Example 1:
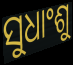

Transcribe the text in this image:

ସୁଧାଂଶୁ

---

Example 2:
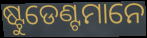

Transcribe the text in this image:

ଷ୍ଟୁଡେଣ୍ଟମାନେ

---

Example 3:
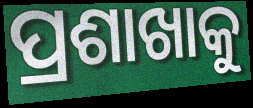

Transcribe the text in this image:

ପ୍ରଶାଖାକୁ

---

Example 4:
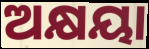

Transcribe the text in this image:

ଅକ୍ଷୟା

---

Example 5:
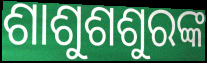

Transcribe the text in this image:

ଶାଶୁଶଶୁରଙ୍କ